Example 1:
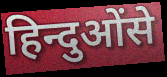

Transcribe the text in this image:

हिन्दुओंसे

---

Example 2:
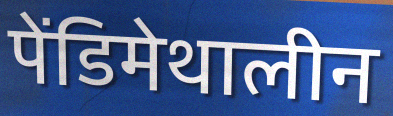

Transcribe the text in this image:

पेंडिमेथालीन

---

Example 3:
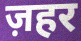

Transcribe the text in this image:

ज़हर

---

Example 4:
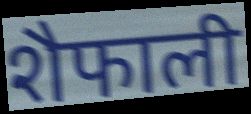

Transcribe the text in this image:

शैफाली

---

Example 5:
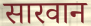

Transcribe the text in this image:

सारवान